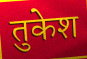
तुकेश